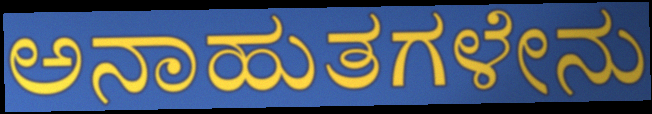
ಅನಾಹುತಗಳೇನು